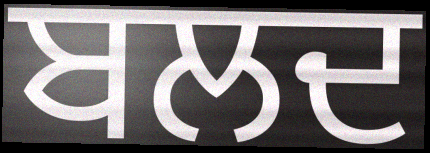
ਬਲਦ